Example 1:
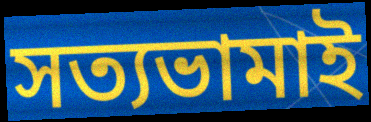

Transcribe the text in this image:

সত্যভামাই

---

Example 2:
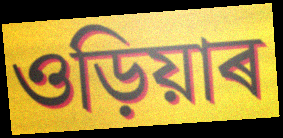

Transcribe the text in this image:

ওড়িয়াৰ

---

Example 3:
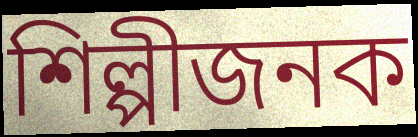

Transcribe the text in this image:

শিল্পীজনক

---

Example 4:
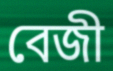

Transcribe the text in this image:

বেজী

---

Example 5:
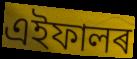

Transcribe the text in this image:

এইফালৰ